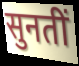
सुनतीं